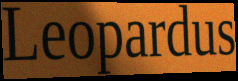
Leopardus